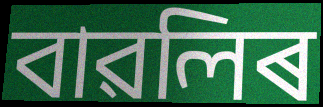
বাৱলিৰ